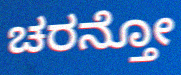
ಚರನ್ತೋ